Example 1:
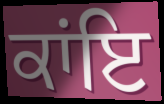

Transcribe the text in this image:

ਕਾਂਇ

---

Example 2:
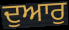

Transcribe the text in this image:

ਦੁਆਰੁ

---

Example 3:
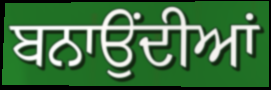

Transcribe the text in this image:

ਬਨਾਉਂਦੀਆਂ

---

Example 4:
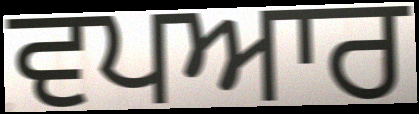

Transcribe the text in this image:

ਵਪਆਰ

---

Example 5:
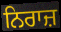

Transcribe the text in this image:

ਨਿਰਾਜ਼